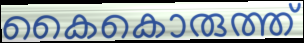
കൈകൊരുത്ത്